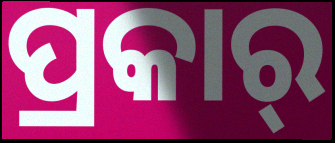
ପ୍ରକାର୍